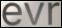
evr